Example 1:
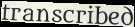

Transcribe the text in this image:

transcribed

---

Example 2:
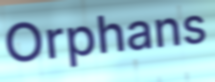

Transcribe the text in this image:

Orphans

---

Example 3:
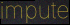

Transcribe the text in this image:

impute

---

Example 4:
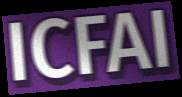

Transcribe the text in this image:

ICFAI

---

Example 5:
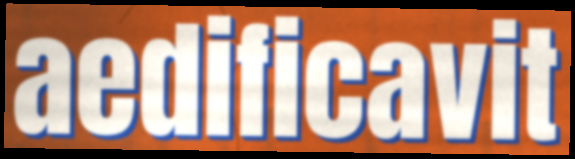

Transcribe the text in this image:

aedificavit